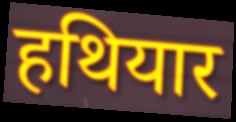
हथियार